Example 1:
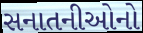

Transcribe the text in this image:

સનાતનીઓનો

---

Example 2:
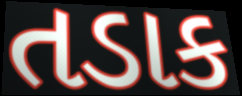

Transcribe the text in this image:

તડાક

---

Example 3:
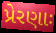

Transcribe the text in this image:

પ્રેરણાઃ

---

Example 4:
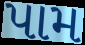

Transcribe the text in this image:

પામ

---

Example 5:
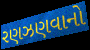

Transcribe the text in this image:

રણઝણવાનો